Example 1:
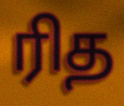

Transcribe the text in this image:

ரித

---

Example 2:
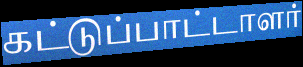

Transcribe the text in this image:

கட்டுப்பாட்டாளர்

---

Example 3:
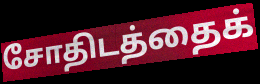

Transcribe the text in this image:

சோதிடத்தைக்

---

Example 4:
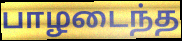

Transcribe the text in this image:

பாழடைந்த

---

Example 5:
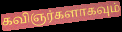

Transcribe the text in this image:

கவிஞர்களாகவும்